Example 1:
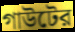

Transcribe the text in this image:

গাউটের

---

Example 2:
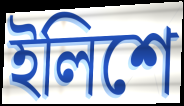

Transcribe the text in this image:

ইলিশে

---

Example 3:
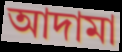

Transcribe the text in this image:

আদামা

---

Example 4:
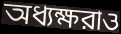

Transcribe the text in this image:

অধ্যক্ষরাও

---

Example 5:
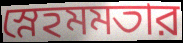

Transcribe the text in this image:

স্নেহমমতার